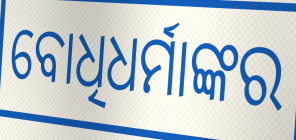
ବୋଧିଧର୍ମାଙ୍କର